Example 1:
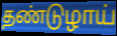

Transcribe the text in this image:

தண்டுழாய்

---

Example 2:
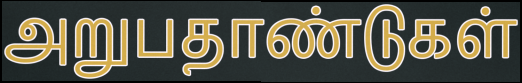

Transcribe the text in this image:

அறுபதாண்டுகள்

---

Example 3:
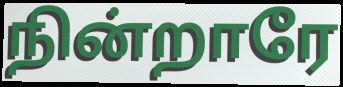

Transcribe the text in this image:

நின்றாரே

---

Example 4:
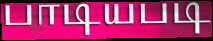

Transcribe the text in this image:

பாடியபடி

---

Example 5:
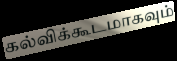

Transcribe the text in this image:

கல்விக்கூடமாகவும்